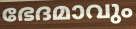
ഭേദമാവും